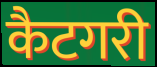
कैटगरी